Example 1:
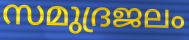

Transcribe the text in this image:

സമുദ്രജലം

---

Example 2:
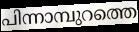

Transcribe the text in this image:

പിന്നാമ്പുറത്തെ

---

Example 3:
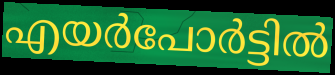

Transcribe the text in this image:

എയർപോർട്ടിൽ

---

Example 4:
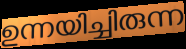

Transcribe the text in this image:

ഉന്നയിച്ചിരുന്ന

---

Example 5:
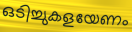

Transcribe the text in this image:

ഒടിച്ചുകളയേണം